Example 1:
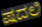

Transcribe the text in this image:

ಷದಲಿ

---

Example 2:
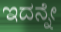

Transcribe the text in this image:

ಇದನ್ನೇ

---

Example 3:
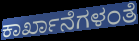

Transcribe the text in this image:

ಕಾರ್ಖಾನೆಗಳಂತೆ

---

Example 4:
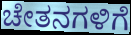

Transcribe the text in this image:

ಚೇತನಗಳಿಗೆ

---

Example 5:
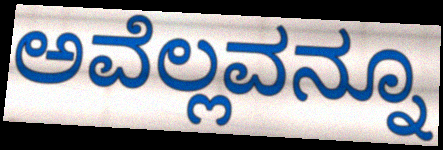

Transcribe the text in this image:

ಅವೆಲ್ಲವನ್ನೂ